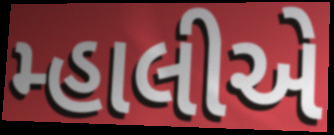
મ્હાલીએ